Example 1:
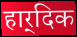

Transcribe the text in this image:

हार्दिक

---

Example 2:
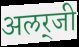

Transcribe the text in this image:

अलर्जी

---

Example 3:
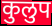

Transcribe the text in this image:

कुलुप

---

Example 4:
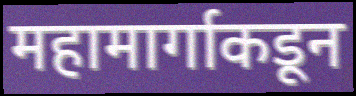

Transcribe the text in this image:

महामार्गाकडून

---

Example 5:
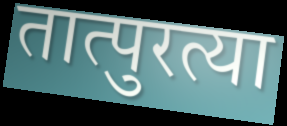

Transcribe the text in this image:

तात्पुरत्या